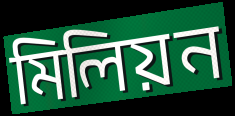
মিলিয়ন